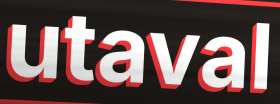
utaval